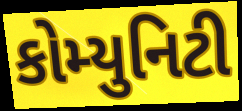
કોમ્યુનિટી